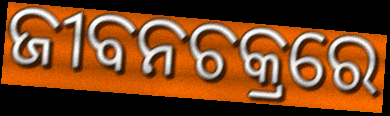
ଜୀବନଚକ୍ରରେ